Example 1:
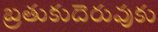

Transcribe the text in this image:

బ్రతుకుదెరువుకు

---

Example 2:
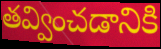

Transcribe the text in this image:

తవ్వించడానికి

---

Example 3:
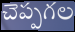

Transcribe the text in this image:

చెప్పగల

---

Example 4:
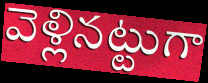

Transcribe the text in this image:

వెళ్లినట్టుగా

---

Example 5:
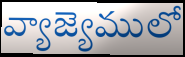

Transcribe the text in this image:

వ్యాజ్యెములో